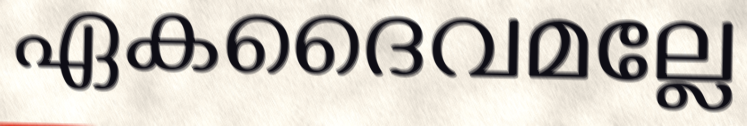
ഏകദൈവമല്ലേ